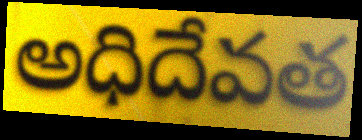
అధిదేవత